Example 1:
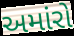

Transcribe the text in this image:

અમાંરો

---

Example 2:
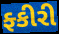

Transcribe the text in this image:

ફ્કીરી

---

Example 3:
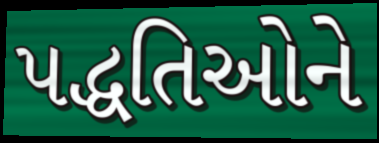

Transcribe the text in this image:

પદ્ધતિઓને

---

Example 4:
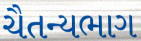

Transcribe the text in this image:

ચૈતન્યભાગ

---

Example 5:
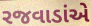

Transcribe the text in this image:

રજવાડાંએ